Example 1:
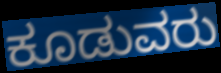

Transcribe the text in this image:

ಕೂಡುವರು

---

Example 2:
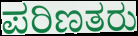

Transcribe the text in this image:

ಪರಿಣತರು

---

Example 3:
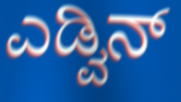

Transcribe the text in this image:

ಎಡ್ವಿನ್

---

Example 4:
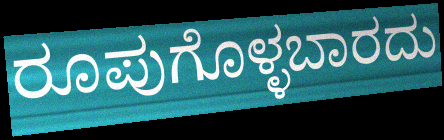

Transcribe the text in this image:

ರೂಪುಗೊಳ್ಳಬಾರದು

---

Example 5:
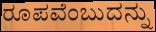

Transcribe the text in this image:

ರೂಪವೆಂಬುದನ್ನು